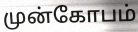
முன்கோபம்